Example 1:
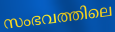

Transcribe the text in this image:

സംഭവത്തിലെ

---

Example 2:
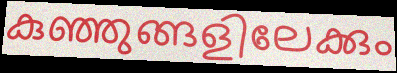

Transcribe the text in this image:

കുഞ്ഞുങ്ങളിലേക്കും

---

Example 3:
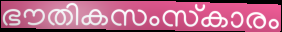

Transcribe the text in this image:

ഭൗതികസംസ്‌കാരം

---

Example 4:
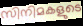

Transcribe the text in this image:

സിനിമകളുടെ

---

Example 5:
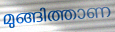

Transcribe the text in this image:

മുങ്ങിത്താണ